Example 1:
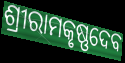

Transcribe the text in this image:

ଶ୍ରୀରାମକୃଷ୍ଣଦେବ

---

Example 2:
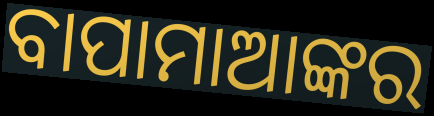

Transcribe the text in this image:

ବାପାମାଆଙ୍କର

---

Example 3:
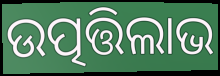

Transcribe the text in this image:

ଉତ୍ପତ୍ତିଲାଭ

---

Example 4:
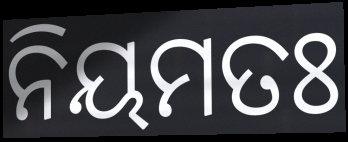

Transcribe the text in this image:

ନିୟମତଃ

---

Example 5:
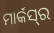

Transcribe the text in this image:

ମାର୍କସ୍‍ର